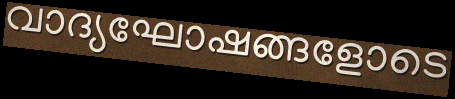
വാദ്യഘോഷങ്ങളോടെ